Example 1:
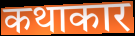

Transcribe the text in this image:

कथाकार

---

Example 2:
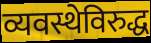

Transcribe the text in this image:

व्यवस्थेविरुद्ध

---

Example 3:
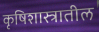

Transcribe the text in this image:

कृषिशास्त्रातील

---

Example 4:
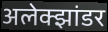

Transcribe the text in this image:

अलेक्झांडर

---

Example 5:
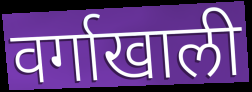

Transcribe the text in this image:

वर्गाखाली